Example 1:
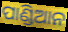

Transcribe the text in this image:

ପାଣ୍ଡିଆନ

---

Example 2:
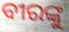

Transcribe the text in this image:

ବୀରଙ୍କୁ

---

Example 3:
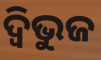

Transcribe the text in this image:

ଦ୍ଵିଭୁଜ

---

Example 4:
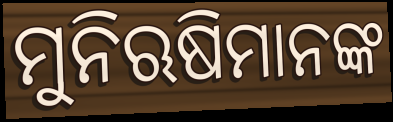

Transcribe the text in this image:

ମୁନିଋଷିମାନଙ୍କ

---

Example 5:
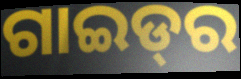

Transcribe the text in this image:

ଗାଇଡ୍‌ର